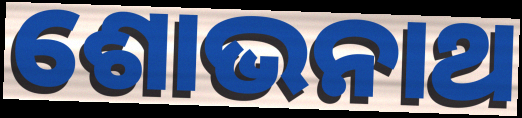
ଶୋଭନାଥ